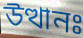
উত্থানঃ